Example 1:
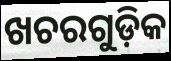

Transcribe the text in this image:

ଖଚରଗୁଡ଼ିକ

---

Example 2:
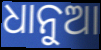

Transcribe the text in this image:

ଧାନୁଆ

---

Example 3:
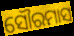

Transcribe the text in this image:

ସୌରମାସ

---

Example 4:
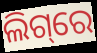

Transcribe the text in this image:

ଲିଗ୍‌ରେ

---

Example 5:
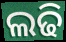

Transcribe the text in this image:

ଲଢି